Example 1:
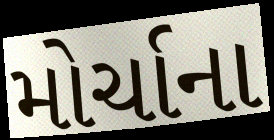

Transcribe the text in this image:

મોર્ચાના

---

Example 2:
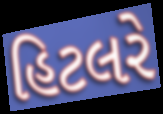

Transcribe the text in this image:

હિટલરે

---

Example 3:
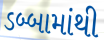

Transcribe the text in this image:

ડબ્બામાંથી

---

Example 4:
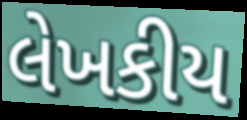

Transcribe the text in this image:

લેખકીય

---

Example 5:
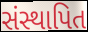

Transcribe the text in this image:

સંસ્થાપિત